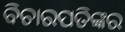
ବିଚାରପତିଙ୍କର